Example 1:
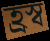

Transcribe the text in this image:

হ্রস্ব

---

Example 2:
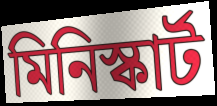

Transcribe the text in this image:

মিনিস্কার্ট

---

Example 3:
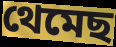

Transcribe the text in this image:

থেমেছ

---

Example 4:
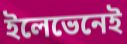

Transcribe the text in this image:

ইলেভেনেই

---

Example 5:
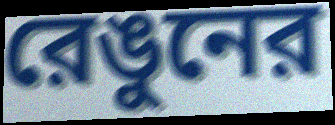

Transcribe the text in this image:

রেঙুনের